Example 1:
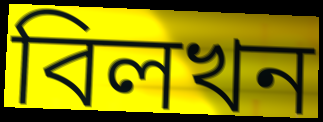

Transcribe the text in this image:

বিলখন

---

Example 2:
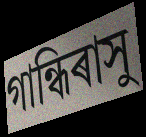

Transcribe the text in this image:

গান্ধিৰাসু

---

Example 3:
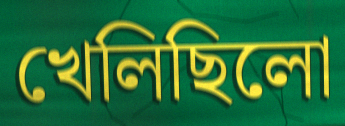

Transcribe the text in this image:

খেলিছিলো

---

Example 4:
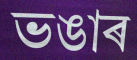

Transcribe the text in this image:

ভঙাৰ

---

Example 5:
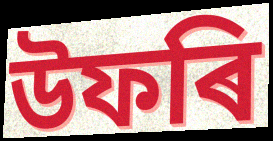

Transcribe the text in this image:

উফৰি